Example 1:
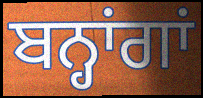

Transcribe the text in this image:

ਬਨ੍ਹ੍ਹ੍ਹਾਂਗਾਂ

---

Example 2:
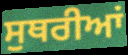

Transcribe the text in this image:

ਸੁਥਰੀਆਂ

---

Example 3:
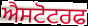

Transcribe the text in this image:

ਐਸਟੋਟਰਫ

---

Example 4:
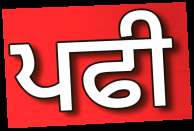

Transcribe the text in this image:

ਪਫੀ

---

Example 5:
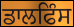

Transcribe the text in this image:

ਡਾਲਫਿੰਸ